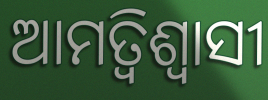
ଆମତ୍ବିଶ୍ୱାସୀ